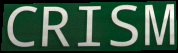
CRISM